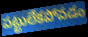
పట్టులేకపోవడం